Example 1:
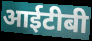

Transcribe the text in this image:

आईटीबी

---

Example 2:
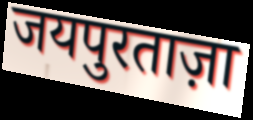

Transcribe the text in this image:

जयपुरताज़ा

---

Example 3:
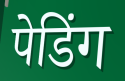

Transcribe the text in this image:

पेडिंग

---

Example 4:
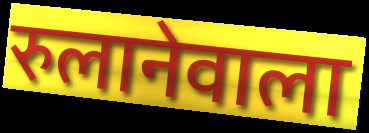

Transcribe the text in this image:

रुलानेवाला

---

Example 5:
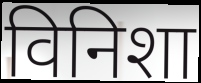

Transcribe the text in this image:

विनिशा